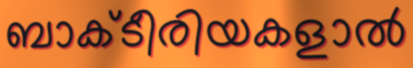
ബാക്ടീരിയകളാൽ